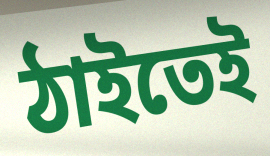
ঠাইতেই